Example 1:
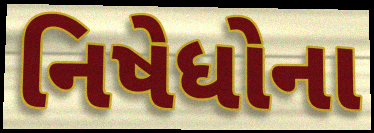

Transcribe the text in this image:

નિષેધોના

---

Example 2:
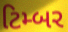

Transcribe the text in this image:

ટિમ્બર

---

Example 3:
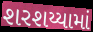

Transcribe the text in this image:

શરશય્યામાં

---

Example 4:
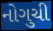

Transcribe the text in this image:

નોગુચી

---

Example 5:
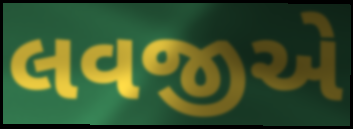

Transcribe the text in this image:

લવજીએ